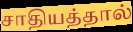
சாதியத்தால்